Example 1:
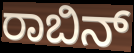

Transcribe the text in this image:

ರಾಬಿನ್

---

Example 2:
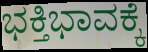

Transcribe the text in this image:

ಭಕ್ತಿಭಾವಕ್ಕೆ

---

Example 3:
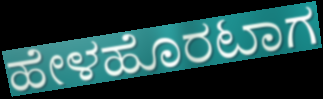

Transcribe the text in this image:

ಹೇಳಹೊರಟಾಗ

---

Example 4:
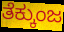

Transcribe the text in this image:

ತೆಕ್ಕುಂಜ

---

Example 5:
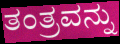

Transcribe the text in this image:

ತಂತ್ರವನ್ನು